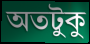
অতটুকু